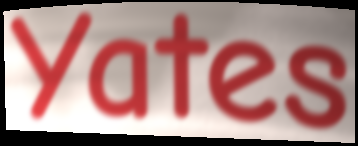
Yates